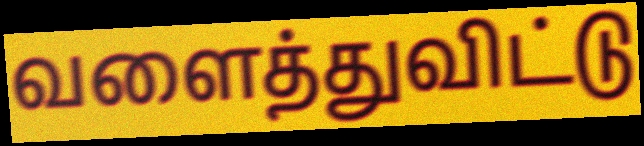
வளைத்துவிட்டு